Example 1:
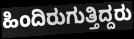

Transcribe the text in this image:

ಹಿಂದಿರುಗುತ್ತಿದ್ದರು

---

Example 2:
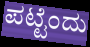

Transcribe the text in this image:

ಪಟ್ಟೆಂದು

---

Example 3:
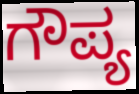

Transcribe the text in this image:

ಗೌಪ್ಯ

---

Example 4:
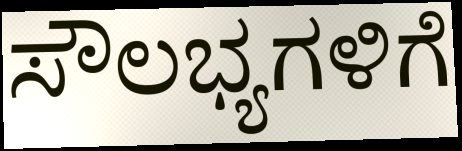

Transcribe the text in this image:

ಸೌಲಭ್ಯಗಳಿಗೆ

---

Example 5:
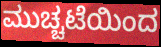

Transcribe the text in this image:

ಮುಚ್ಚಟೆಯಿಂದ